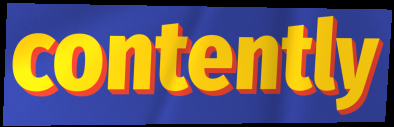
contently